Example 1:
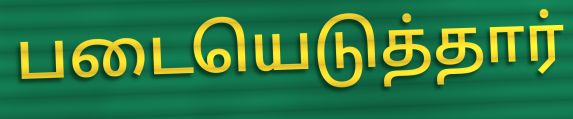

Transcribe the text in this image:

படையெடுத்தார்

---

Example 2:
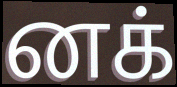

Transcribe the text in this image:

னக்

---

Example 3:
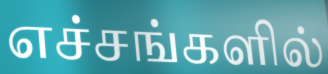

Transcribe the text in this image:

எச்சங்களில்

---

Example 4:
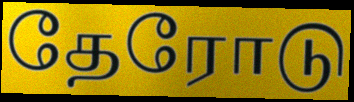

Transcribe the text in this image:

தேரோடு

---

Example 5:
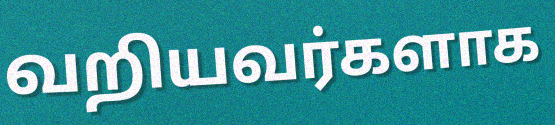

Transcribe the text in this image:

வறியவர்களாக